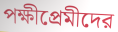
পক্ষীপ্রেমীদের